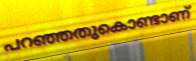
പറഞ്ഞതുകൊണ്ടാണ്